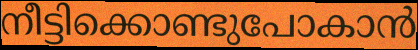
നീട്ടിക്കൊണ്ടുപോകാൻ